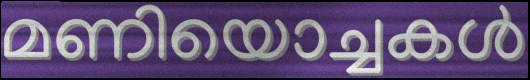
മണിയൊച്ചകൾ